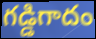
గడ్డిగాదం